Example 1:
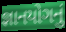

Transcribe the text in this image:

જ્ઞાનયોગનું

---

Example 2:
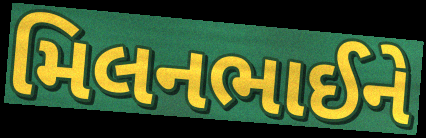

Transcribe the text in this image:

મિલનભાઈને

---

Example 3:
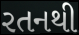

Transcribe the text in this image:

રતનથી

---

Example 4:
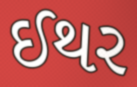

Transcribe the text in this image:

ઈથર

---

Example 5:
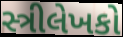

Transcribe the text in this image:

સ્ત્રીલેખકો